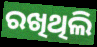
ରଖିଥିଲି